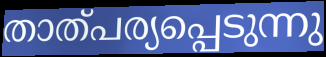
താത്പര്യപ്പെടുന്നു